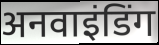
अनवाइंडिंग